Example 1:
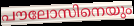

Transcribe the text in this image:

പൗലോസിനെയും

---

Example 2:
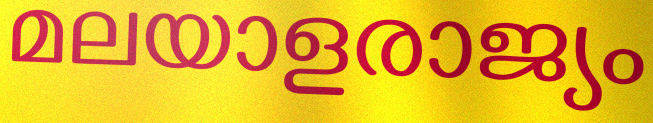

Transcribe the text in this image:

മലയാളരാജ്യം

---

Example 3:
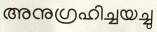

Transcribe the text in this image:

അനുഗ്രഹിച്ചയച്ചു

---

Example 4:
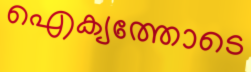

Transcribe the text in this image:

ഐക്യത്തോടെ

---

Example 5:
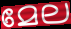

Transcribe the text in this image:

മേല